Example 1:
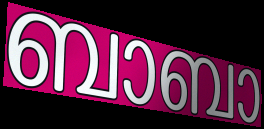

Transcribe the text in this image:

ബാബാ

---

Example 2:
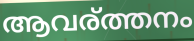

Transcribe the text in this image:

ആവര്ത്തനം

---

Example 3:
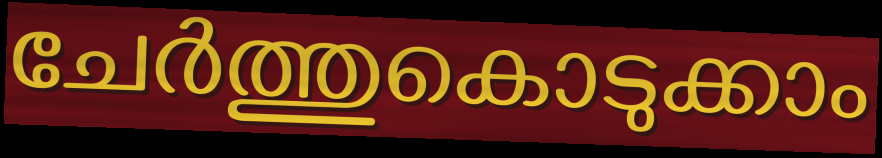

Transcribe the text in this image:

ചേർത്തുകൊടുക്കാം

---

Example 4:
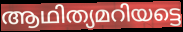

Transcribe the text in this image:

ആഥിത്യമറിയട്ടെ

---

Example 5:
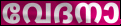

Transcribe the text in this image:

വേദനാ